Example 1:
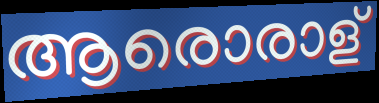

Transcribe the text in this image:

ആരൊരാള്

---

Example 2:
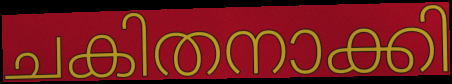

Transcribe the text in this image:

ചകിതനാക്കി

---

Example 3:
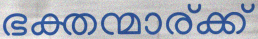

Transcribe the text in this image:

ഭക്തന്മാര്ക്ക്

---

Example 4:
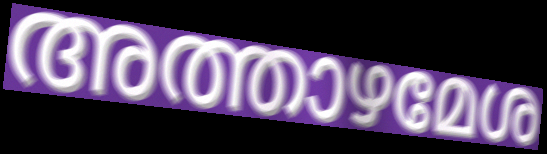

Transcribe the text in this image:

അത്താഴമേശ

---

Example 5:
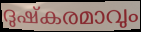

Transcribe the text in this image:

ദുഷ്‌കരമാവും